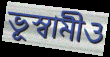
ভূস্বামীও